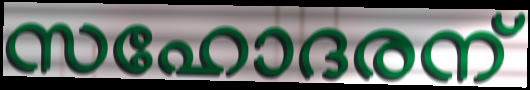
സഹോദരന്